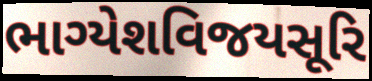
ભાગ્યેશવિજયસૂરિ